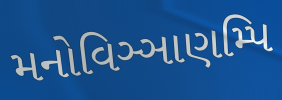
મનોવિઞ્ઞાણમ્પિ